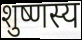
शुष्णस्य